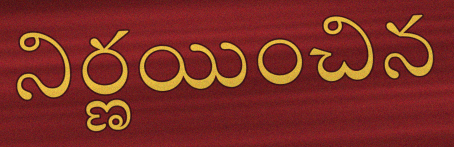
నిర్ణయించిన